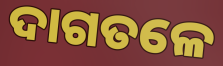
ଦାଗତଳେ